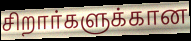
சிறார்களுக்கான